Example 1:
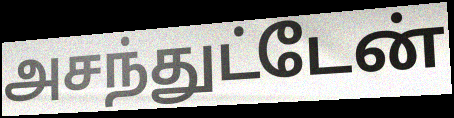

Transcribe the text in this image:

அசந்துட்டேன்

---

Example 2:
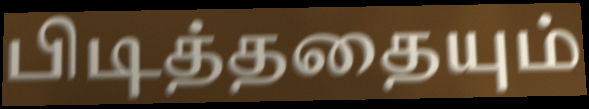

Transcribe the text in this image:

பிடித்ததையும்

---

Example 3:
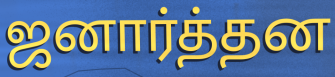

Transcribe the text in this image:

ஜனார்த்தன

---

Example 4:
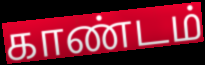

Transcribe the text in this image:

காண்டம்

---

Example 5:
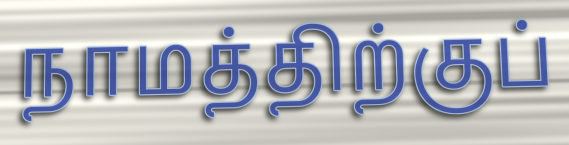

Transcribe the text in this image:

நாமத்திற்குப்